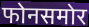
फोनसमोर